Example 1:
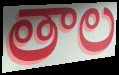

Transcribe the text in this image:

తాల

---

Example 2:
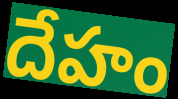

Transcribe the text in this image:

దేహం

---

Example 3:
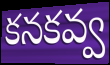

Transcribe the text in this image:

కనకవ్వ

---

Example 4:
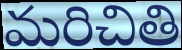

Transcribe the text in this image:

మరిచితి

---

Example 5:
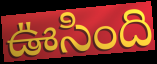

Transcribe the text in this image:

ఊసింది